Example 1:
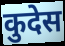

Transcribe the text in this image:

कुदेस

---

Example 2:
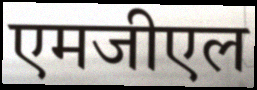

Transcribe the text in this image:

एमजीएल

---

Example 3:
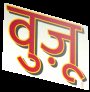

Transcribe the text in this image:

वुज़ू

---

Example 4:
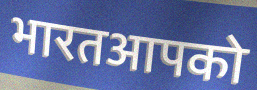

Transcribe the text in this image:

भारतआपको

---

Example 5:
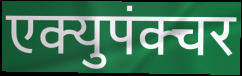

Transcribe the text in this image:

एक्युपंक्चर